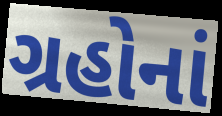
ગ્રહોનાં